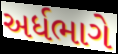
અર્ધભાગે